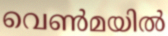
വെൺമയിൽ